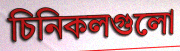
চিনিকলগুলো